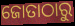
ଜୋତାଠାରୁ